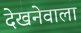
देखनेवाला